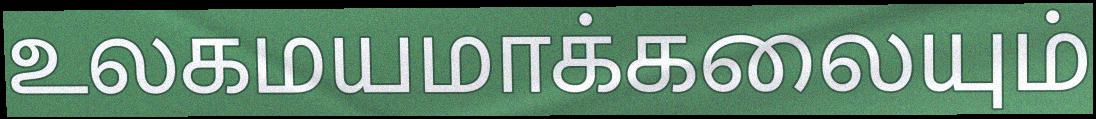
உலகமயமாக்கலையும்